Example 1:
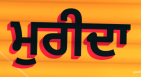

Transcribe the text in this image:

ਮੁਰੀਦਾ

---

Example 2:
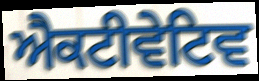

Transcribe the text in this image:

ਐਕਟੀਵੇਟਿਵ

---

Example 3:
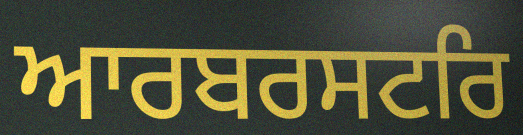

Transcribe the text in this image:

ਆਰਬਰਸਟਰਿ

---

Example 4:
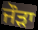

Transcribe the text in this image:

ਜੌੜਾ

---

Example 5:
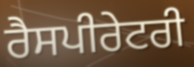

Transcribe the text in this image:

ਰੈਸਪੀਰੇਟਰੀ